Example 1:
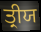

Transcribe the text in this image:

ਤ੍ਰੀਯ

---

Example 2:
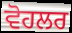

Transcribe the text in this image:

ਵੋਹਲਰ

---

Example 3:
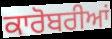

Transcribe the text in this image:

ਕਾਰੋਬਰੀਆਂ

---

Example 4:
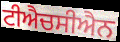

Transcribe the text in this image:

ਟੀਐਚਸੀਐਨ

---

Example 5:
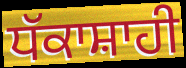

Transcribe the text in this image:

ਧੱਕਾਸ਼ਾਹੀ